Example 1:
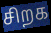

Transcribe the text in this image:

சிறக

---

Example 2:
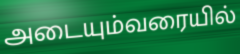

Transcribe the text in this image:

அடையும்வரையில்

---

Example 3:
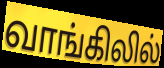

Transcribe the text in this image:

வாங்கிலில்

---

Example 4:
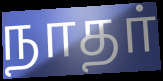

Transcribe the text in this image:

நாதர்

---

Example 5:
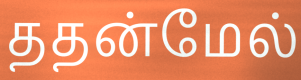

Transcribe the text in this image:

ததன்மேல்